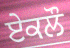
ਏਕਲੌ